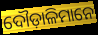
ଦୌଡ଼ାଳିମାନେ